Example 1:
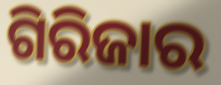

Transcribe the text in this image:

ଗିରିଜାର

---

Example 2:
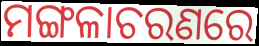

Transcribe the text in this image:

ମଙ୍ଗଳାଚରଣରେ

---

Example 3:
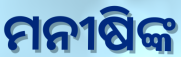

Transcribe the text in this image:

ମନୀଷିଙ୍କ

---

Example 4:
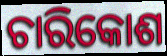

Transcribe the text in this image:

ଚାରିକୋଶ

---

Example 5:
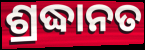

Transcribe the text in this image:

ଶ୍ରଦ୍ଧାନତ